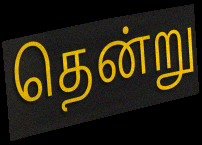
தென்று